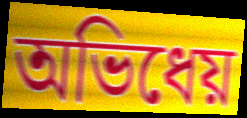
অভিধেয়